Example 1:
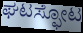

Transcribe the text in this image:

ಘಟಸ್ಫೋಟ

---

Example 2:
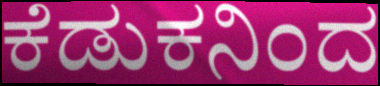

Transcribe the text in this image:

ಕೆಡುಕನಿಂದ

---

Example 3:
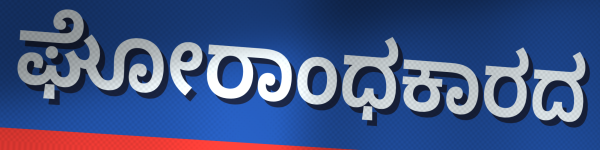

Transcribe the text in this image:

ಘೋರಾಂಧಕಾರದ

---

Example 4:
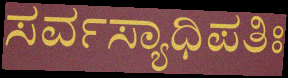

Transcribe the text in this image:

ಸರ್ವಸ್ಯಾಧಿಪತಿಃ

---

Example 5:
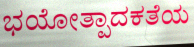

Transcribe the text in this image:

ಭಯೋತ್ಪಾದಕತೆಯ